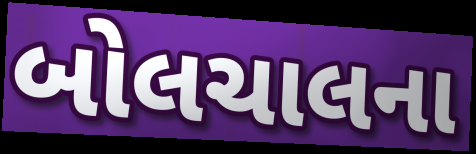
બોલચાલના